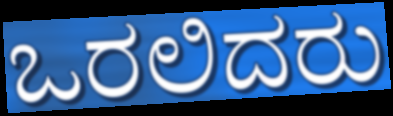
ಒರಲಿದರು